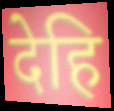
देहि